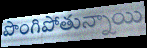
పొంగిపోతున్నాయి